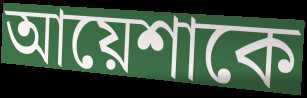
আয়েশাকে